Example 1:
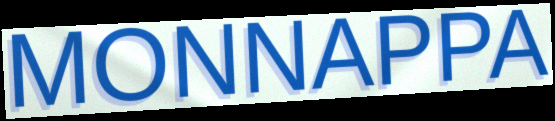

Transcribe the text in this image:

MONNAPPA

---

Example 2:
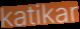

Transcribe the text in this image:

katikar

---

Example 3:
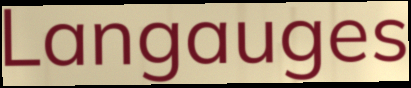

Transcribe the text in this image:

Langauges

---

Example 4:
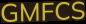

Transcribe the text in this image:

GMFCS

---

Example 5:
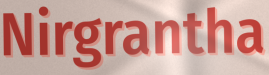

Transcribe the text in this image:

Nirgrantha